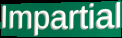
Impartial